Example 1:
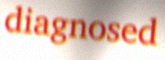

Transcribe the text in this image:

diagnosed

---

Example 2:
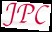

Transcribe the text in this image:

JPC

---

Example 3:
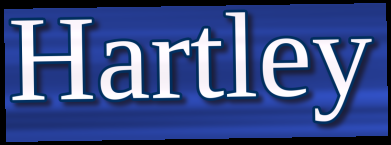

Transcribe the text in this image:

Hartley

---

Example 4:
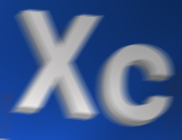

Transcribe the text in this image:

Xc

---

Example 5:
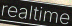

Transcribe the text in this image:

realtime